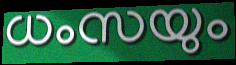
ധംസയും